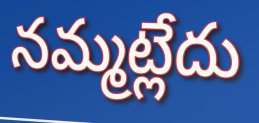
నమ్మట్లేదు